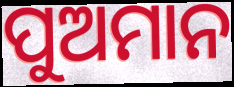
ପୁଅମାନ